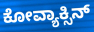
ಕೋವ್ಯಾಕ್ಸಿನ್